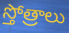
స్తోత్రాలు